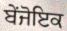
ਬੇਂਜੋਇਕ